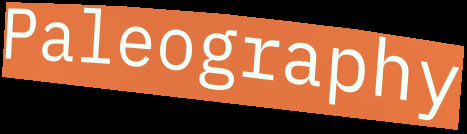
Paleography